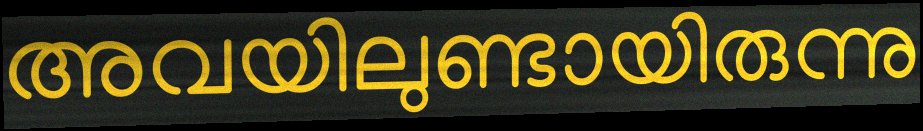
അവയിലുണ്ടായിരുന്നു